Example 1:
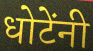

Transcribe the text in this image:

धोटेंनी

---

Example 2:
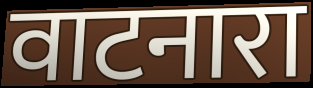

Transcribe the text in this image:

वाटनारा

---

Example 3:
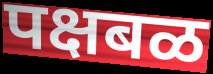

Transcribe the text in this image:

पक्षबळ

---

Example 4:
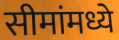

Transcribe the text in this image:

सीमांमध्ये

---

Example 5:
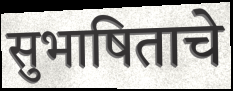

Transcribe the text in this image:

सुभाषिताचे